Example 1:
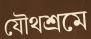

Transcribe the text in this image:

যৌথশ্রমে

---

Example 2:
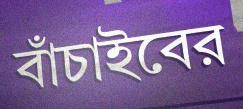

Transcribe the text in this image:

বাঁচাইবের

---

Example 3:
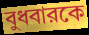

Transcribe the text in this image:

বুধবারকে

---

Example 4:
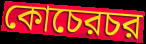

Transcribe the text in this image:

কোচেরচর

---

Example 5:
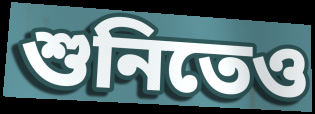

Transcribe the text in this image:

শুনিতেও